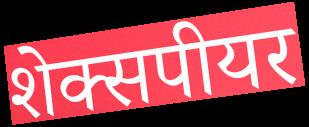
शेक्सपीयर